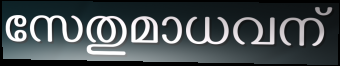
സേതുമാധവന്